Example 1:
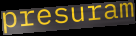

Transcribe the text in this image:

presuram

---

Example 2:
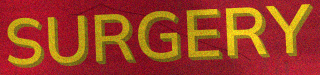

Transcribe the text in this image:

SURGERY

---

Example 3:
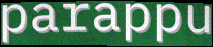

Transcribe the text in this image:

parappu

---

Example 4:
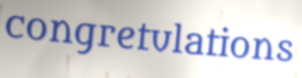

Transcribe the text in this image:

congretulations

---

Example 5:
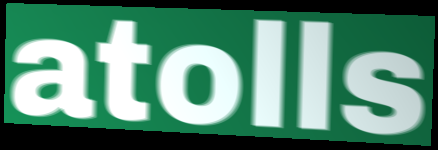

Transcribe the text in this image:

atolls